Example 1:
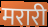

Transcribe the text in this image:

मरारी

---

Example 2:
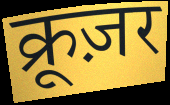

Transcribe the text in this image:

क्रूज़र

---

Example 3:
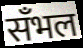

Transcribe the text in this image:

सँभल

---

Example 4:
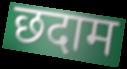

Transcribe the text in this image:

छदाम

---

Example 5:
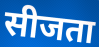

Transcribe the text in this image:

सीजता